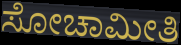
ಸೋಚಾಮೀತಿ